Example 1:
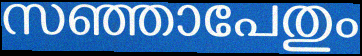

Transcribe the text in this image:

സഞ്ഞാപേതും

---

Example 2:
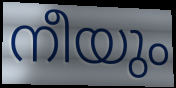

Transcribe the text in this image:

നീയും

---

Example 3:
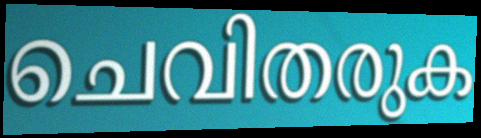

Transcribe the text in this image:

ചെവിതരുക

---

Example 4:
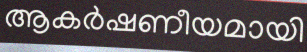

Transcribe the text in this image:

ആകർഷണീയമായി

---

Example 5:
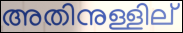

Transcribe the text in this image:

അതിനുള്ളില്